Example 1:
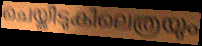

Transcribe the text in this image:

ചെയ്തീടുകിലെത്രയും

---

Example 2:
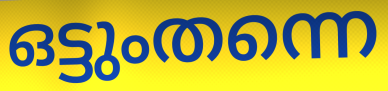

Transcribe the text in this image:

ഒട്ടുംതന്നെ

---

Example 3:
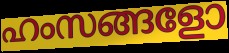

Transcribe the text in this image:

ഹംസങ്ങളോ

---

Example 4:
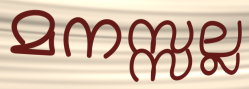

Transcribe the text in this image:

മനസ്സല്ല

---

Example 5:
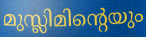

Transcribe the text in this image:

മുസ്ലിമിന്റെയും